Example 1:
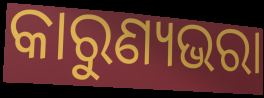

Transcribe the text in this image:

କାରୁଣ୍ୟଭରା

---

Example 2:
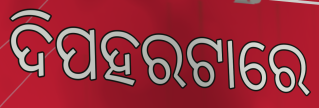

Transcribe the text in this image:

ଦିପହରଟାରେ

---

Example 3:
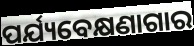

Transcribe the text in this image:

ପର୍ଯ୍ୟବେକ୍ଷଣାଗାର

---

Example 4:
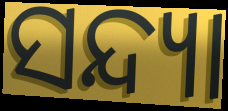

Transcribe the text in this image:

ସନ୍ଦ୍ୟା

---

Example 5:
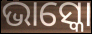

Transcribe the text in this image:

ଭାସ୍କୋ